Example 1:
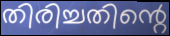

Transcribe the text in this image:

തിരിച്ചതിന്റെ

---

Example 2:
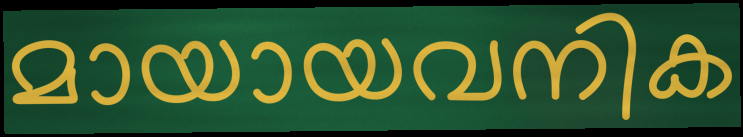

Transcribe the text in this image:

മായായവനിക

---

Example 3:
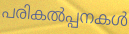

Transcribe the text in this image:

പരികൽപ്പനകൾ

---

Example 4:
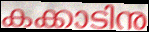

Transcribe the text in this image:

കക്കാടിനു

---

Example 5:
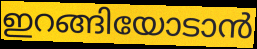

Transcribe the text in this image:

ഇറങ്ങിയോടാൻ